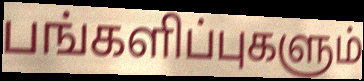
பங்களிப்புகளும்